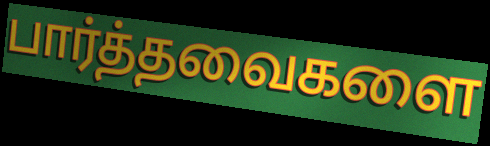
பார்த்தவைகளை